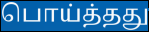
பொய்த்தது